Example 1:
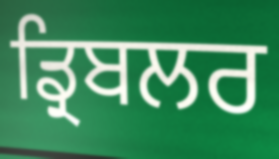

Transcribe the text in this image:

ਡ੍ਰਿਬਲਰ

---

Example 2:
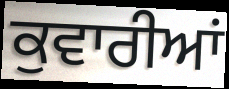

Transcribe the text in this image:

ਕੁਵਾਰੀਆਂ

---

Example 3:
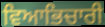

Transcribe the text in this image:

ਵਿਆਭਿਚਾਰੀ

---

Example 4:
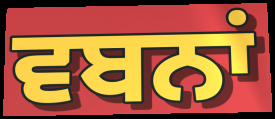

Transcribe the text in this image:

ਵਬਨਾਂ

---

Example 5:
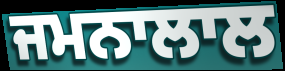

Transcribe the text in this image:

ਜਮਨਾਲਾਲ